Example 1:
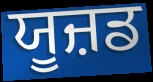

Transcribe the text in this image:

ਯੂਜ਼ਡ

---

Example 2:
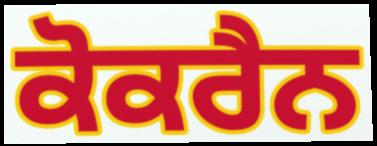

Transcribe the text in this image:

ਕੋਕਰੈਨ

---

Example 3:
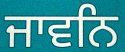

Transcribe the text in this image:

ਜਾਵਨਿ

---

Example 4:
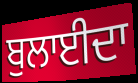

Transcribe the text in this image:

ਬੁਲਾਈਦਾ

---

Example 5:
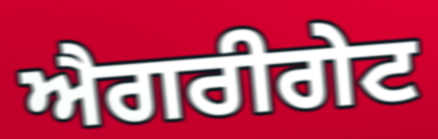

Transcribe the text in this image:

ਐਗਰੀਗੇਟ